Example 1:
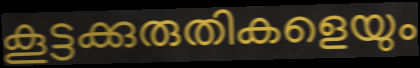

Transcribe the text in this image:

കൂട്ടക്കുരുതികളെയും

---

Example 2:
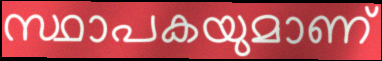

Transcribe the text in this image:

സ്ഥാപകയുമാണ്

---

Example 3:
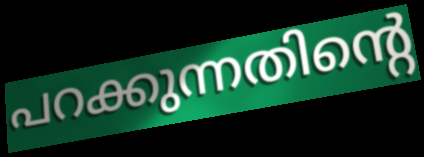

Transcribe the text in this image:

പറക്കുന്നതിന്റെ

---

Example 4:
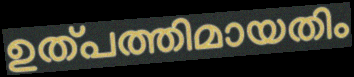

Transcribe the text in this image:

ഉത്പത്തിമായതിം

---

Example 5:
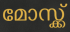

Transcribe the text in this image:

മോസ്ക്ക്